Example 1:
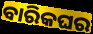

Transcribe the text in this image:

ବାରିକଘର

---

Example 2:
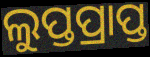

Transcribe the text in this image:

ଲୁପ୍ତପ୍ରାପ୍ତ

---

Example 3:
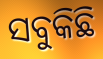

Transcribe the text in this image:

ସବୁକିଛି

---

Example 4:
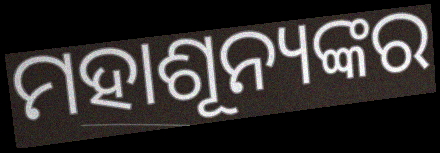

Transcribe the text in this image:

ମହାଶୂନ୍ୟଙ୍କର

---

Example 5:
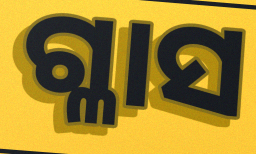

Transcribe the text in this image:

ଗ୍ଳାସ